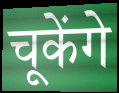
चूकेंगे